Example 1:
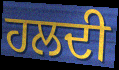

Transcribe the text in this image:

ਹਲਦੀ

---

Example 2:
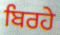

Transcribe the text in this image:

ਬਿਰਹੇ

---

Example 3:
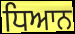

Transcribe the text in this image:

ਧਿਆਨ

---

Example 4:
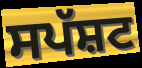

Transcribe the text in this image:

ਸਪੱਸ਼ਟ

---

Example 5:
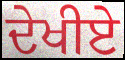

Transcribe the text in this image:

ਦੇਖੀਏ